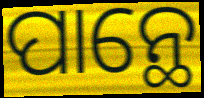
ପାନ୍ଥେ